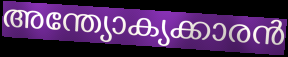
അന്ത്യോക്യക്കാരൻ